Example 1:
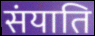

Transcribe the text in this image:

संयाति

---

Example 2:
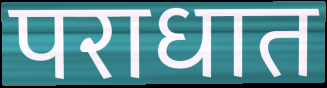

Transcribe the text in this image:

पराधात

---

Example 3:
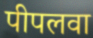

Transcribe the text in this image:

पीपलवा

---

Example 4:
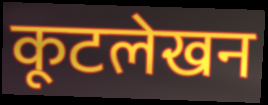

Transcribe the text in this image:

कूटलेखन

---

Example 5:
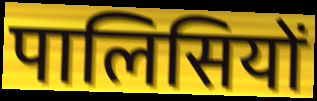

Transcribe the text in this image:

पालिसियों